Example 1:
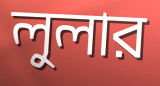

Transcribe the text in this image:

লুলার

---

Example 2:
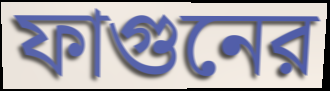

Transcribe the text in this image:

ফাগুনের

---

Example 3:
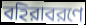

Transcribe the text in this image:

বহিরাবরণে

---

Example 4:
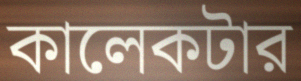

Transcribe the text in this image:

কালেকটার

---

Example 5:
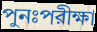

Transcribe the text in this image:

পুনঃপরীক্ষা